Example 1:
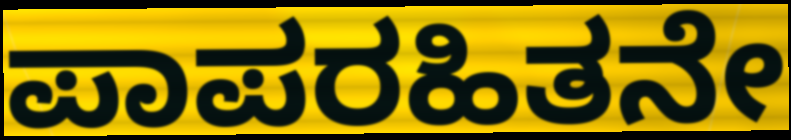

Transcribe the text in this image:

ಪಾಪರಹಿತನೇ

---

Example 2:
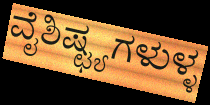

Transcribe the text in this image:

ವೈಶಿಷ್ಟ್ಯಗಳುಳ್ಳ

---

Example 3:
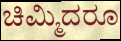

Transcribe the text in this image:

ಚಿಮ್ಮಿದರೂ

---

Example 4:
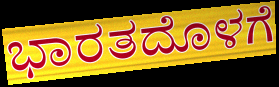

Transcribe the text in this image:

ಭಾರತದೊಳಗೆ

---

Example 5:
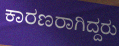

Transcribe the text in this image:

ಕಾರಣರಾಗಿದ್ದರು